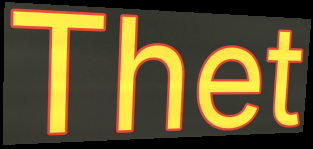
Thet